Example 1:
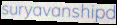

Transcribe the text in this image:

suryavanshipd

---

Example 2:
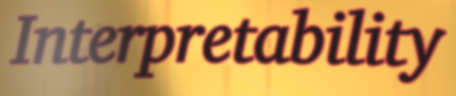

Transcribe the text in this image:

Interpretability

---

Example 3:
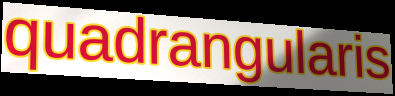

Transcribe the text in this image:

quadrangularis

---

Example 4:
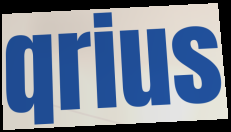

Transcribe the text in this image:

qrius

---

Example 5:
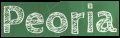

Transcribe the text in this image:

Peoria